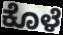
ಕೊಳೆ